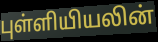
புள்ளியியலின்